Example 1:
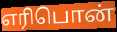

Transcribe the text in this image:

எரிபொன்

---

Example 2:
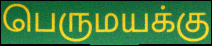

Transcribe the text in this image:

பெருமயக்கு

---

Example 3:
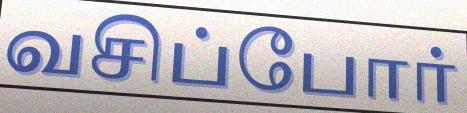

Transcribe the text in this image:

வசிப்போர்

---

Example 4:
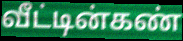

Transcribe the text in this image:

வீட்டின்கண்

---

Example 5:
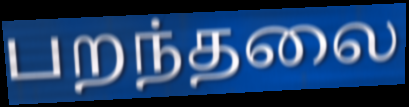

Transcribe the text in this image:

பறந்தலை